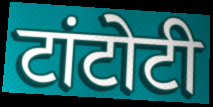
टांटोटी